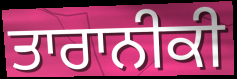
ਤਾਰਾਨੀਕੀ